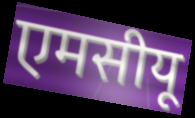
एमसीयू